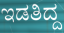
ಇಡತಿದ್ದ